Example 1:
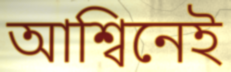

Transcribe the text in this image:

আশ্বিনেই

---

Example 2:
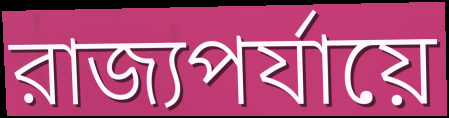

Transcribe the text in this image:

রাজ্যপর্যায়ে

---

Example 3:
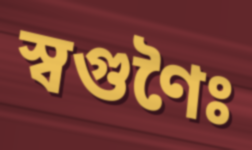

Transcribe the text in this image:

স্বগুণৈঃ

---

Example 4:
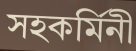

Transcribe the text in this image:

সহকর্মিনী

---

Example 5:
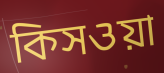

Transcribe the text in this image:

কিসওয়া